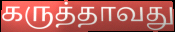
கருத்தாவது